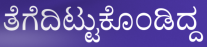
ತೆಗೆದಿಟ್ಟುಕೊಂಡಿದ್ದ